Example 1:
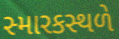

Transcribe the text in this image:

સ્મારકસ્થળે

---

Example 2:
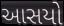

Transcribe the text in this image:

આસયો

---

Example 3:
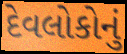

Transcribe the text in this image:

દેવલોકોનું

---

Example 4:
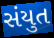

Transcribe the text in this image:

સંયુત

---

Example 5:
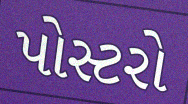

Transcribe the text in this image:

પોસ્ટરો